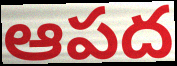
ఆపద